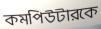
কমপিউটারকে